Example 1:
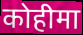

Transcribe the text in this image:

कोहीमा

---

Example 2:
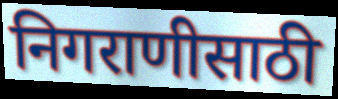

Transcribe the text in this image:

निगराणीसाठी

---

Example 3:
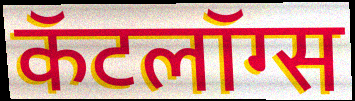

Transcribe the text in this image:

कॅटलॉग्स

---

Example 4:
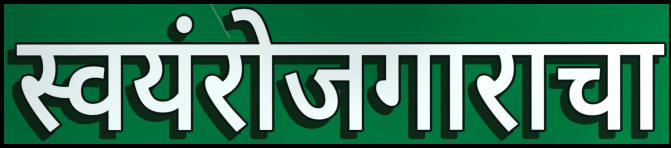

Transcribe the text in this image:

स्वयंरोजगाराचा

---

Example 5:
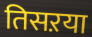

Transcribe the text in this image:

तिसऱया